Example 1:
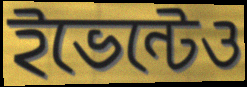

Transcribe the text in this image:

ইভেন্টেও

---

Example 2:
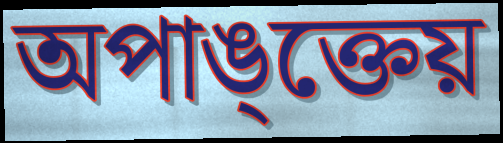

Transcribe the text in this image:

অপাঙ্‌ক্তেয়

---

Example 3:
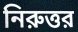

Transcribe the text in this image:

নিরুত্তর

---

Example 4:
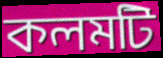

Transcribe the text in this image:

কলমটি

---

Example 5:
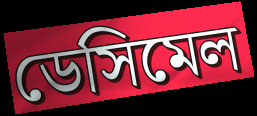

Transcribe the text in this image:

ডেসিমেল